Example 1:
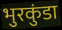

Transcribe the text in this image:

भुरकुंडा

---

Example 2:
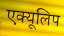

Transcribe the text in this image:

एक्यूलिप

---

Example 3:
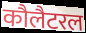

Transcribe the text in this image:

कौलैटरल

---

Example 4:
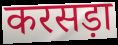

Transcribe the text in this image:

करसड़ा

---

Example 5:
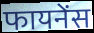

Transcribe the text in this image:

फायनेंस